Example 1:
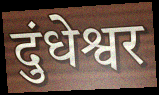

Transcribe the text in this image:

दुंधेश्वर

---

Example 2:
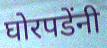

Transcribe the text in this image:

घोरपडेंनी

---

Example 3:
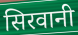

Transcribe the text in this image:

सिरवानी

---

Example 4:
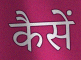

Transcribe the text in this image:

कैसें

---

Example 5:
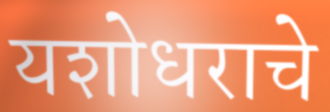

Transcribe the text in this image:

यशोधराचे